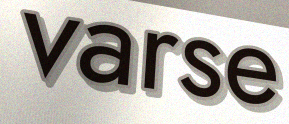
varse